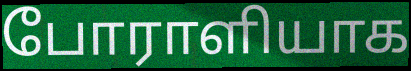
போராளியாக